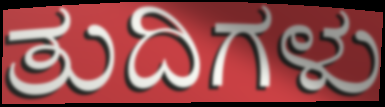
ತುದಿಗಳು